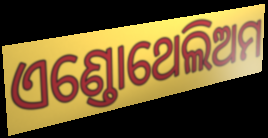
ଏଣ୍ଡୋଥେଲିଅମ